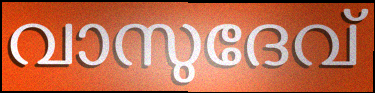
വാസുദേവ്